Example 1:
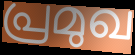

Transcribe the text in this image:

പ്രമുഖ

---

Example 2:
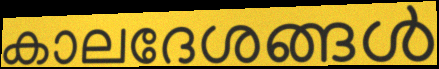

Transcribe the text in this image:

കാലദേശങ്ങൾ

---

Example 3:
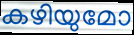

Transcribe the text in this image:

കഴിയുമോ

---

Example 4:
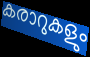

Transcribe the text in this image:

കരാറുകളും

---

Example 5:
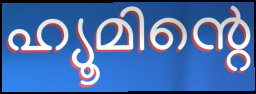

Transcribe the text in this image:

ഹ്യൂമിന്റെ